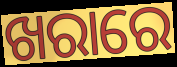
ଖରାରେ